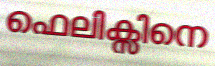
ഫെലിക്സിനെ